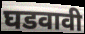
घडवावी